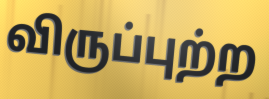
விருப்புற்ற